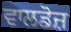
ਵਾਲਡੋਜ਼